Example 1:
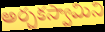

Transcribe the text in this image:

అర్చకస్వామిని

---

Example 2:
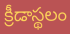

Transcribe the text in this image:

క్రీడాస్థలం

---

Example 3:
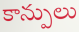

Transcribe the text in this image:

కాన్పులు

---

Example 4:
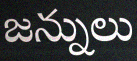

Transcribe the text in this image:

జన్నులు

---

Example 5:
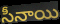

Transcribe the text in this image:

సీనాయి